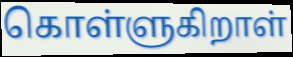
கொள்ளுகிறாள்